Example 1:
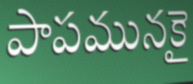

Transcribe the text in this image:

పాపమునకై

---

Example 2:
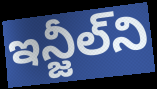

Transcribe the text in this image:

ఇన్జీల్‌ని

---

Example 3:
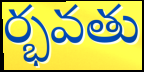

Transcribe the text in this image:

ర్భవతు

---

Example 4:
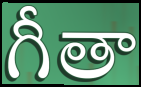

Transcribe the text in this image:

గీతా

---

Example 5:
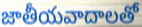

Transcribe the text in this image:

జాతీయవాదాలతో